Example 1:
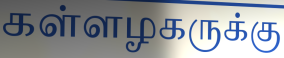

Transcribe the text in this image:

கள்ளழகருக்கு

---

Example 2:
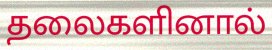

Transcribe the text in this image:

தலைகளினால்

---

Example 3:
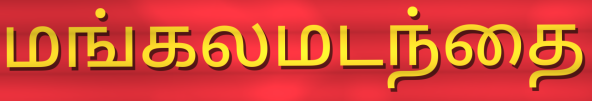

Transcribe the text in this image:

மங்கலமடந்தை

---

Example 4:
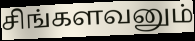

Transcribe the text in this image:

சிங்களவனும்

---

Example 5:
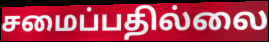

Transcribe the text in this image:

சமைப்பதில்லை